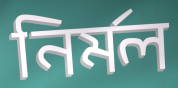
নির্মল